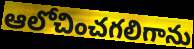
ఆలోచించగలిగాను